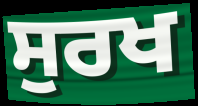
ਸੁਰਖ